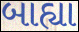
બાહ્યા